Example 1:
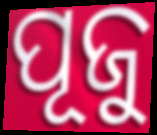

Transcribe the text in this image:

ପୂଜୁ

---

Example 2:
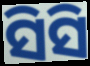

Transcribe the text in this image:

ସିସି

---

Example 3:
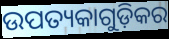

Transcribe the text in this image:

ଉପତ୍ୟକାଗୁଡ଼ିକର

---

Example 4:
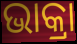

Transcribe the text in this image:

ଭାକ୍ରା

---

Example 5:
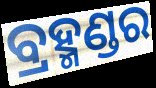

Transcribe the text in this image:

ବ୍ରହ୍ମଣ୍ଡର